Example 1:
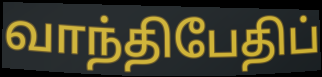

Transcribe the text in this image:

வாந்திபேதிப்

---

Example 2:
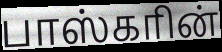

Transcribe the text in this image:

பாஸ்கரின்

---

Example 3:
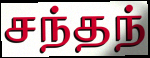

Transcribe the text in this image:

சந்தந்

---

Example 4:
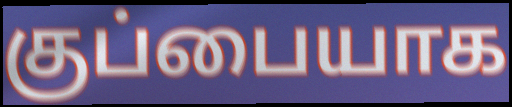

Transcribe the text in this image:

குப்பையாக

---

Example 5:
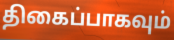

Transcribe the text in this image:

திகைப்பாகவும்